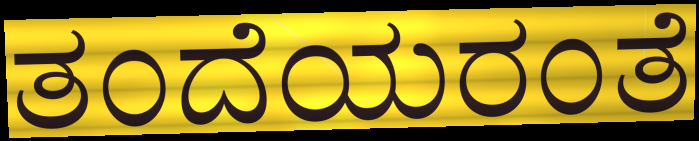
ತಂದೆಯರಂತೆ